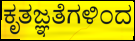
ಕೃತಜ್ಞತೆಗಳಿಂದ